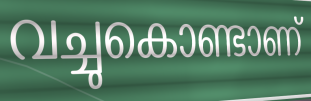
വച്ചുകൊണ്ടാണ്